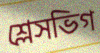
শ্লেসভিগ